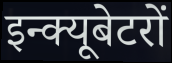
इन्क्यूबेटरों